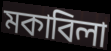
মকাবিলা